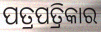
ପତ୍ରପତ୍ରିକାର